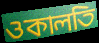
ওকালতি